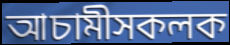
আচামীসকলক